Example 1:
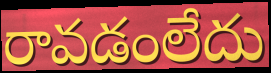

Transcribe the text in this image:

రావడంలేదు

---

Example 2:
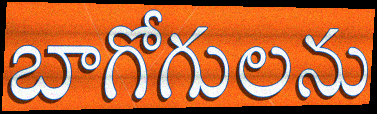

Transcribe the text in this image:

బాగోగులను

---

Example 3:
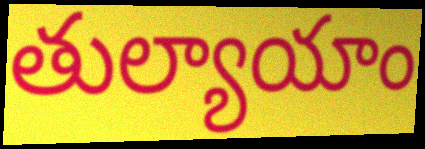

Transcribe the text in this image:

తుల్యాయాం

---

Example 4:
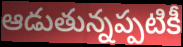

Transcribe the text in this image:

ఆడుతున్నప్పటికీ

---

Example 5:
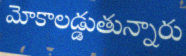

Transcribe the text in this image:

మోకాలడ్డుతున్నారు